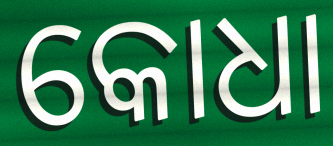
କୋଧା